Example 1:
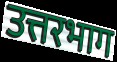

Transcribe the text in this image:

उत्तरभाग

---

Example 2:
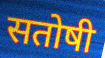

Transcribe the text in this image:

सतोषी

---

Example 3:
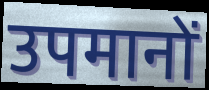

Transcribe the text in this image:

उपमानों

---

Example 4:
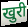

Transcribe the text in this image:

खुरी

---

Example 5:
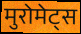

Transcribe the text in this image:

मुरोमेट्स